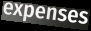
expenses